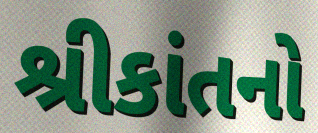
શ્રીકાંતનો